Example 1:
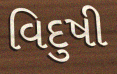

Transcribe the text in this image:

વિદુષી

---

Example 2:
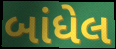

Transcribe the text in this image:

બાંધેલ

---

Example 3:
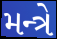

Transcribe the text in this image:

મન્ત્રે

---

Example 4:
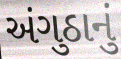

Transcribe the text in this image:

અંગુઠાનું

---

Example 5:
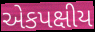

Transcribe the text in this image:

એકપક્ષીય